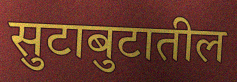
सुटाबुटातील